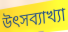
উৎসব্যাখ্যা